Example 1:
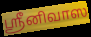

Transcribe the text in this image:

ஸ்ரீனிவாஸ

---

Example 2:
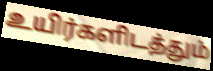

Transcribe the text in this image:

உயிர்களிடத்தும்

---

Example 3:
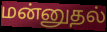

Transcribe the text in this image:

மன்னுதல்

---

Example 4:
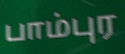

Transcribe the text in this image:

பாம்புர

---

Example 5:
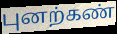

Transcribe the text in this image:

புனற்கண்